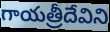
గాయత్రీదేవిని